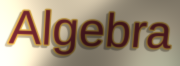
Algebra